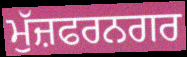
ਮੁੱਜ਼ਫਰਨਗਰ